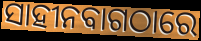
ସାହୀନବାଗଠାରେ